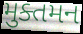
મુક્તમન